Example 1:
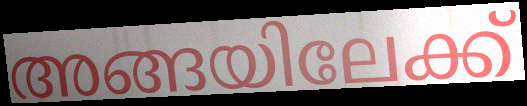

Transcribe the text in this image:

അങ്ങയിലേക്ക്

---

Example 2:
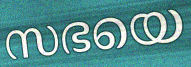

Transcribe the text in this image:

സഭയെ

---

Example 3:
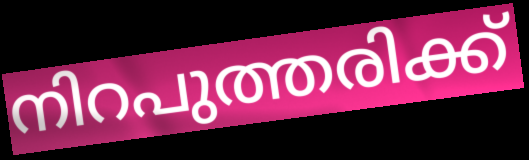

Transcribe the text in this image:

നിറപുത്തരിക്ക്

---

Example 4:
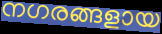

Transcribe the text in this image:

നഗരങ്ങളായ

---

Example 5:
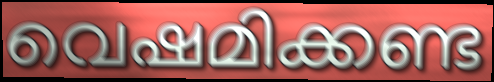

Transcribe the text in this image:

വെഷമിക്കണ്ട